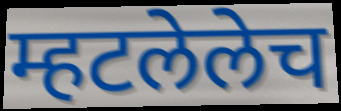
म्हटलेलेच